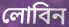
লোবিন